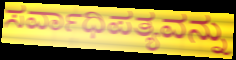
ಸರ್ವಾಧಿಪತ್ಯವನ್ನು